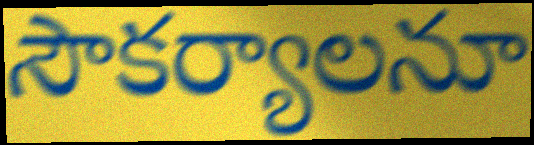
సౌకర్యాలనూ